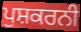
ਪੁਸ਼ਕਰਨੀ